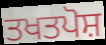
ਤਖਤਪੋਸ਼